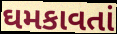
ઘમકાવતાં